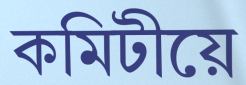
কমিটীয়ে